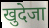
खुदेजा